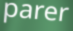
parer